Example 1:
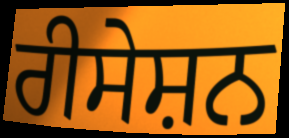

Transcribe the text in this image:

ਰੀਸੇਸ਼ਨ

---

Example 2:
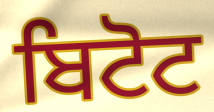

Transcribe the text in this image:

ਬਿਟੋਟ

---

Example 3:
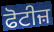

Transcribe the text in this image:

ਫੋਟੀਜ਼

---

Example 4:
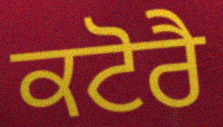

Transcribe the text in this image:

ਕਟੋਰੈ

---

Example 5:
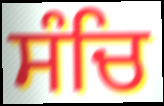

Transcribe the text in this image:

ਸੰਚਿ